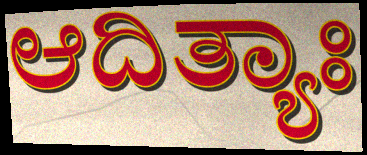
ಆದಿತ್ಯಾಃ